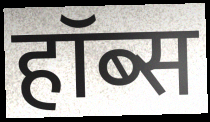
हॉब्स